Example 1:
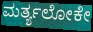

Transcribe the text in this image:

ಮರ್ತ್ಯಲೋಕೇ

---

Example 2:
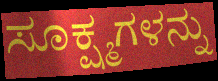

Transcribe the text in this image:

ಸೂಕ್ಷ್ಮಗಳನ್ನು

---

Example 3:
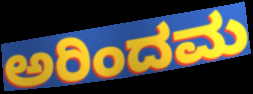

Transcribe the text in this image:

ಅರಿಂದಮ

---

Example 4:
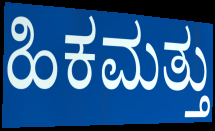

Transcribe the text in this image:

ಹಿಕಮತ್ತು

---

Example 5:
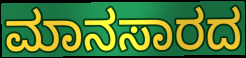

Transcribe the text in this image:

ಮಾನಸಾರದ